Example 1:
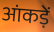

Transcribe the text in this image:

आंकड़ें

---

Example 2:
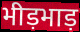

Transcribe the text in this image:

भीड़भाड़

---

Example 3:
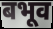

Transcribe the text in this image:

बभूव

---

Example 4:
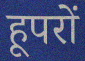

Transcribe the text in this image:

हूपरों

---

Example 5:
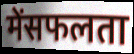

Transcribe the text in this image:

मेंसफलता